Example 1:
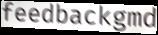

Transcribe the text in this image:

feedbackgmd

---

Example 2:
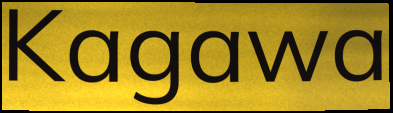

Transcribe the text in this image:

Kagawa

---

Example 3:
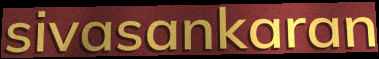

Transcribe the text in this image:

sivasankaran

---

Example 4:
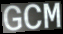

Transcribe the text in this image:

GCM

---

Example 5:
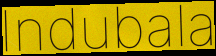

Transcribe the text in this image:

Indubala